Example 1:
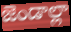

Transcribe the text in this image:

జెండాల్లా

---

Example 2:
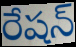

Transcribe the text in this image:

రేషన్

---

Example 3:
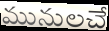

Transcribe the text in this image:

మునులచే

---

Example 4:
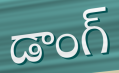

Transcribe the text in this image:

డాంగ్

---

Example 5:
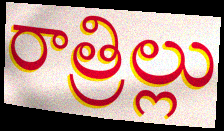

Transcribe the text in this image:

రాత్రిల్లు